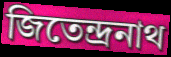
জিতেন্দ্রনাথ